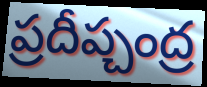
ప్రదీప్చంద్ర